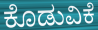
ಕೊಡುವಿಕೆ